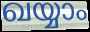
ഖയ്യാം